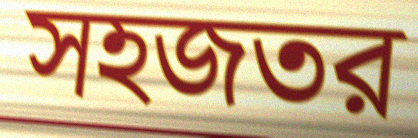
সহজতর